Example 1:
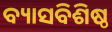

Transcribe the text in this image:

ବ୍ୟାସବିଶିଷ୍ଠ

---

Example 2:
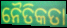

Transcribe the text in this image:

ନୈତିକତା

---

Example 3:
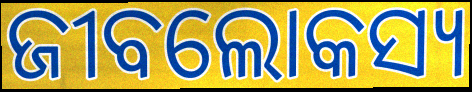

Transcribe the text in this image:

ଜୀବଲୋକସ୍ୟ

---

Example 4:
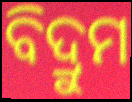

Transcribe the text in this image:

ବିଦ୍ରୁମ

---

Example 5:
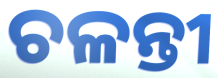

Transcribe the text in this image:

ଚଳନ୍ତୀ